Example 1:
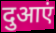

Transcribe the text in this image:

दुआएं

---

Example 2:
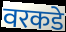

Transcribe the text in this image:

वरकडे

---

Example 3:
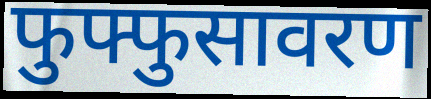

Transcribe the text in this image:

फुफ्फुसावरण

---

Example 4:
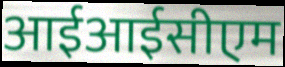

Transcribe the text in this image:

आईआईसीएम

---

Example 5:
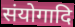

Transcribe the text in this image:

संयोगादि